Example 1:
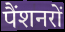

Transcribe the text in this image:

पैंशनरों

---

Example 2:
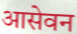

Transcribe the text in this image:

आसेवन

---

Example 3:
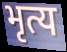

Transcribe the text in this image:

भृत्य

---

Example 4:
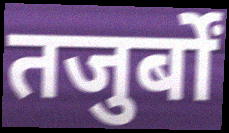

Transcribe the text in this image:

तजुर्बों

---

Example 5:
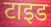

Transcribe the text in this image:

टाइड